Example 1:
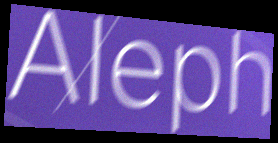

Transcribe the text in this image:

Aleph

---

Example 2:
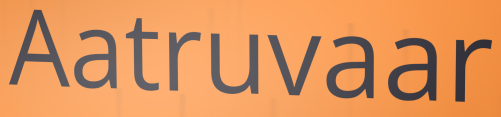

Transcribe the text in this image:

Aatruvaar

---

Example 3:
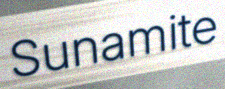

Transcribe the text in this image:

Sunamite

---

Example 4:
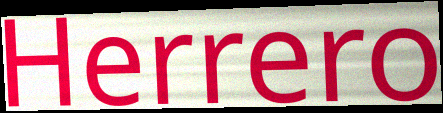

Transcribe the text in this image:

Herrero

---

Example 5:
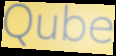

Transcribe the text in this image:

Qube